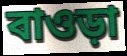
বাওড়া